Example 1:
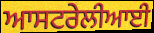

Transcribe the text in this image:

ਆਸਟਰੇਲੀਆਈ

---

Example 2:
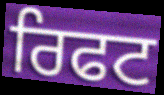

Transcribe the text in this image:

ਰਿਫਟ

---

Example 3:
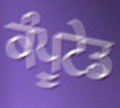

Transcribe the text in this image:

ਕੰਪੂਟੇਡ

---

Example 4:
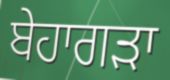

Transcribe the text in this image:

ਬੇਹਾਗੜਾ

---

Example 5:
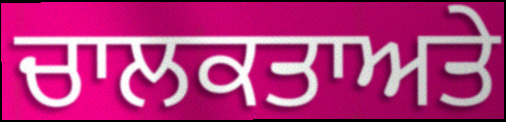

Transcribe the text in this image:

ਚਾਲਕਤਾਅਤੇ